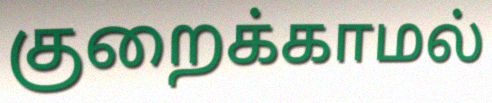
குறைக்காமல்